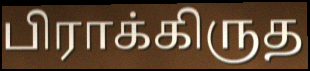
பிராக்கிருத